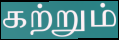
கற்றும்